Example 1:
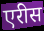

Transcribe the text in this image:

एरीस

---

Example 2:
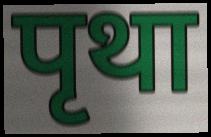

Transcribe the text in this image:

पृथा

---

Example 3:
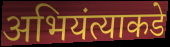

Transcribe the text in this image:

अभियंत्याकडे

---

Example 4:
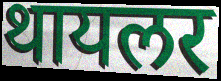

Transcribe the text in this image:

थायलर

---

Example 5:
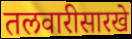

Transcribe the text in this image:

तलवारीसारखे